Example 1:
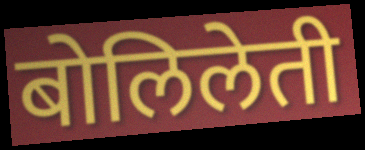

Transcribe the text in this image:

बोलिलेती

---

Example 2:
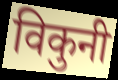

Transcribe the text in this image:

विकुनी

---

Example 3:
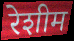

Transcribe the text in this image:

रेशीम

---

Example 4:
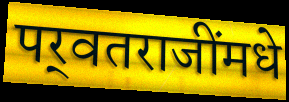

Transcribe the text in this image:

पर्वतराजींमधे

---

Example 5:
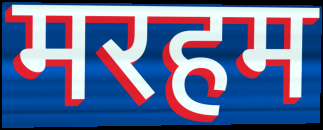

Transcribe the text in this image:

मरहम